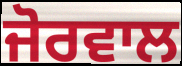
ਜੋਰਵਾਲ